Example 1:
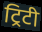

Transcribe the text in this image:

ट्रिटी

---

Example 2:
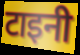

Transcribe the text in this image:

टाइनी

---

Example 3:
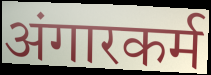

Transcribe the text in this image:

अंगारकर्म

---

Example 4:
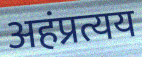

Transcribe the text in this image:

अहंप्रत्यय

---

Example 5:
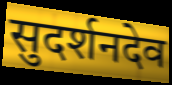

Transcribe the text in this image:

सुदर्शनदेव